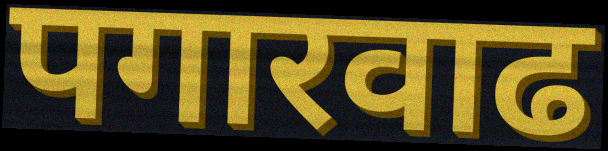
पगारवाढ